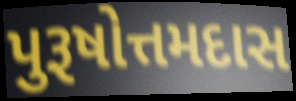
પુરૂષોત્તમદાસ